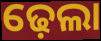
ଢ଼େଲା